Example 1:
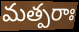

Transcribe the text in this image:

మత్పరాః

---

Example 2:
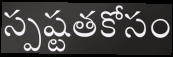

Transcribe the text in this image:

స్పష్టతకోసం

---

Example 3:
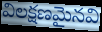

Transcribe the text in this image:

విలక్షణమైనవి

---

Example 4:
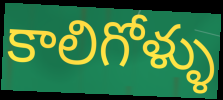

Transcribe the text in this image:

కాలిగోళ్ళు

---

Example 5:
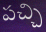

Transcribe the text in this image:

పచ్చి